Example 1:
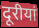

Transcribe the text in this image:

दूरीयां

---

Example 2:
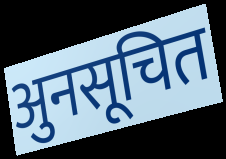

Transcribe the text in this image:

अुनसूचित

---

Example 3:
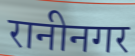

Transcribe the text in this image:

रानीनगर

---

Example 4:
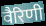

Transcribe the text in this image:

वैरिणी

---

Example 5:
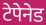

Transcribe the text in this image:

टेपेनेड